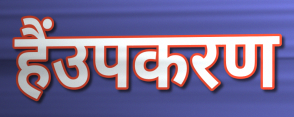
हैंउपकरण